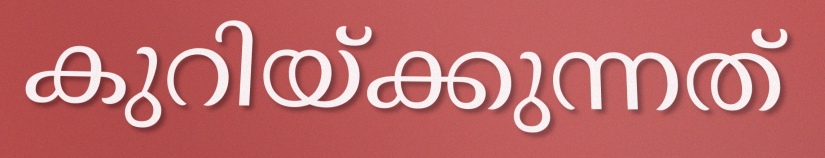
കുറിയ്ക്കുന്നത്